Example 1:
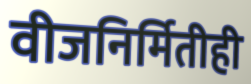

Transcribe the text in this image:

वीजनिर्मितीही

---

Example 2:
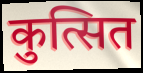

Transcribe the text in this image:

कुत्सित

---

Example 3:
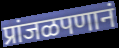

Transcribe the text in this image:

प्रांजळपणानं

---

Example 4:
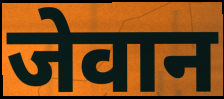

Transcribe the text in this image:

जेवान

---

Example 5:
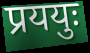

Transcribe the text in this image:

प्रययुः